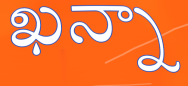
ఖన్నా